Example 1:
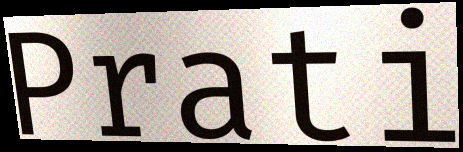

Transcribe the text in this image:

Prati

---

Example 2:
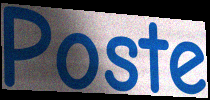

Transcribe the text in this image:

Poste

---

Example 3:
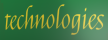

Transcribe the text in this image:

technologies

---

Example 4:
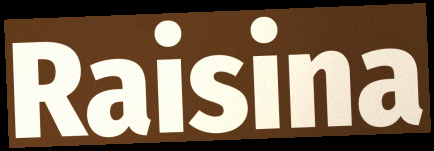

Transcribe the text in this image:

Raisina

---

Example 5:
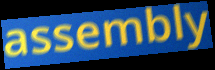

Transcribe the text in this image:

assembly